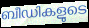
ബീഡികളുടെ